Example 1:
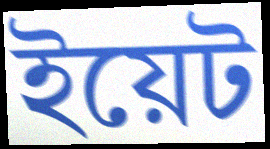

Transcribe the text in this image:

ইয়েট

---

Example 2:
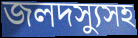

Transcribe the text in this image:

জলদস্যুসহ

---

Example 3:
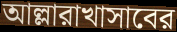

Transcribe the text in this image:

আল্লারাখাসাবের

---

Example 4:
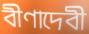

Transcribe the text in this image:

বীণাদেবী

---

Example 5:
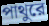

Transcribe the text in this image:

পাথুরে